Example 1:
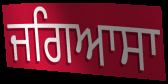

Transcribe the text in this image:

ਜਗਿਆਸਾ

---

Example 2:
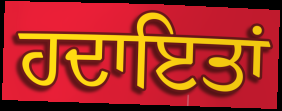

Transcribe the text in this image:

ਹਦਾਇਤਾਂ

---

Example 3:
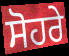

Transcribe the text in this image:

ਸੋਹਰੇ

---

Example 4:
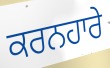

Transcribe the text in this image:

ਕਰਨਹਾਰੇ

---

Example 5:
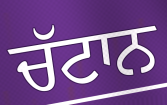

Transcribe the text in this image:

ਚੱਟਾਨ